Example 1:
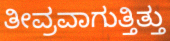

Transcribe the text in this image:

ತೀವ್ರವಾಗುತ್ತಿತ್ತು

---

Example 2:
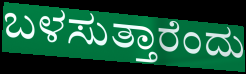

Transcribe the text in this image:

ಬಳಸುತ್ತಾರೆಂದು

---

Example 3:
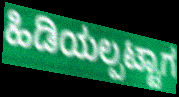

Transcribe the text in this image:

ಹಿಡಿಯಲ್ಪಟ್ಟಾಗ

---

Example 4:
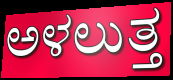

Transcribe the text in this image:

ಅಳಲುತ್ತ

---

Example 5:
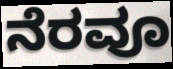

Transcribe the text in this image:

ನೆರವೂ